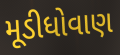
મૂડીધોવાણ